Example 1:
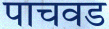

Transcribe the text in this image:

पाचवड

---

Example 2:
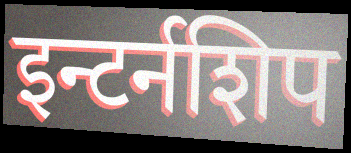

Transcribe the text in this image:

इन्टर्नशिप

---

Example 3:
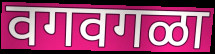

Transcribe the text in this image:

वगवगळा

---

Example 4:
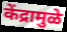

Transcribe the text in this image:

केंद्रामुळे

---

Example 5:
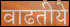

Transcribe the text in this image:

वाढतीये